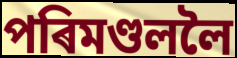
পৰিমণ্ডললৈ